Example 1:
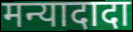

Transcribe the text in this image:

मन्यादादा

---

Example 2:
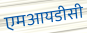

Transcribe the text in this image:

एमआयडीसी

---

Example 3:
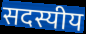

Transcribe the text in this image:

सदस्यीय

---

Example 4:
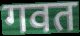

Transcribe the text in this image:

गवत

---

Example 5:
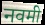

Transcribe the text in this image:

नवमी